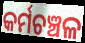
କର୍ମଚଞ୍ଚଳ